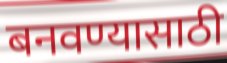
बनवण्‍यासाठी